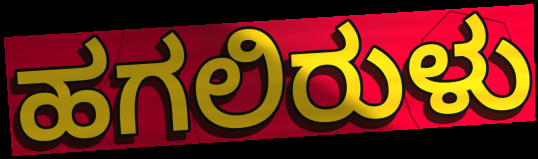
ಹಗಲಿರುಳು